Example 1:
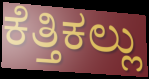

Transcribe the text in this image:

ಕೆತ್ತಿಕಲ್ಲು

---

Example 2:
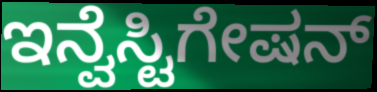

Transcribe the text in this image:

ಇನ್ವೆಸ್ಟಿಗೇಷನ್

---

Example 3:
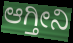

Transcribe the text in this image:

ಆಗ್ತೀನಿ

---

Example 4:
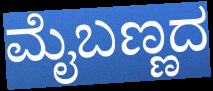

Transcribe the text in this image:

ಮೈಬಣ್ಣದ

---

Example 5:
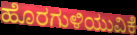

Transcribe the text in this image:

ಹೊರಗುಳಿಯುವಿಕೆ